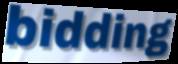
bidding